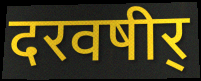
दरवषीर्